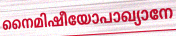
നൈമിഷീയോപാഖ്യാനേ